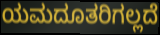
ಯಮದೂತರಿಗಲ್ಲದೆ